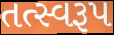
તત્સ્વરૂપ